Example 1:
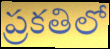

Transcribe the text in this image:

ప్రకతిలో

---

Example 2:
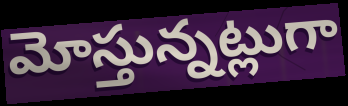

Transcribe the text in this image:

మోస్తున్నట్లుగా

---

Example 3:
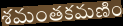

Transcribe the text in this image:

శమంతకమణిం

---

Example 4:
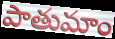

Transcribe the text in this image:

పాతుమాం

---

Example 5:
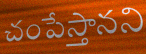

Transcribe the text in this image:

చంపేస్తానని